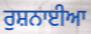
ਰੁਸ਼ਨਾਈਆ